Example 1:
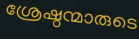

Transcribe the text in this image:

ശ്രേഷ്ഠന്മാരുടെ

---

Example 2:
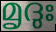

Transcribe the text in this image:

മൃദുഃ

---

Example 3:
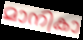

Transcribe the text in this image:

മാനികാ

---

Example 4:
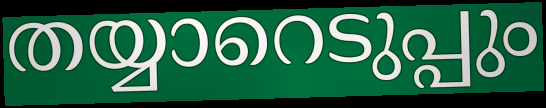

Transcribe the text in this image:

തയ്യാറെടുപ്പും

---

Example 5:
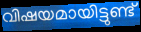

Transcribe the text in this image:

വിഷയമായിട്ടുണ്ട്